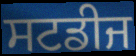
ਸਟਡੀਜ